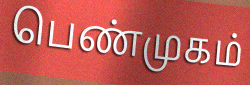
பெண்முகம்